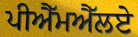
ਪੀਐੱਮਐੱਲਏ